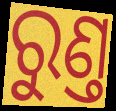
ରୁଣ୍ତ